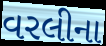
વરલીના